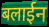
बलाईन